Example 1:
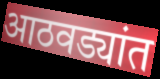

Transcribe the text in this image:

आठवड्यांत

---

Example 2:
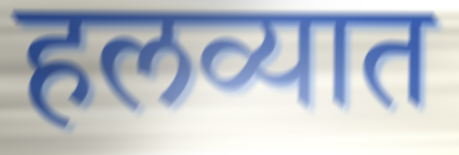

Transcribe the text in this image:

हलव्यात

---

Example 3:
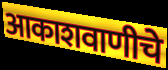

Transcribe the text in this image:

आकाशवाणीचे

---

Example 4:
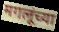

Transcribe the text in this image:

मगलूंच्या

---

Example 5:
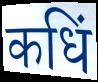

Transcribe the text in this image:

कधिं